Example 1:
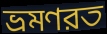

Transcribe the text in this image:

ভ্রমণরত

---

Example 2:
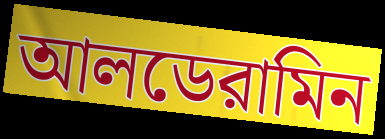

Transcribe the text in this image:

আলডেরামিন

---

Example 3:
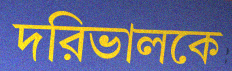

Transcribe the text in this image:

দরিভালকে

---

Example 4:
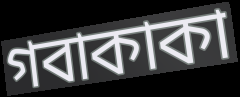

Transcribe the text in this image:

গবাকাকা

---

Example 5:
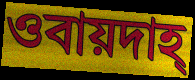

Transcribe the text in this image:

ওবায়দাহ্